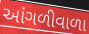
આંગળીવાળા